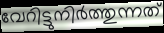
വേറിട്ടുനിർത്തുന്നത്